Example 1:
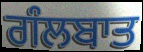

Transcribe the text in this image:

ਗੰਲਬਾਤ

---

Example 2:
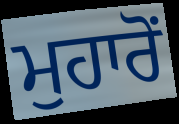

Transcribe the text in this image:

ਮੁਹਾਰੋਂ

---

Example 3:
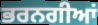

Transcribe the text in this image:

ਭਰਨਗੀਆਂ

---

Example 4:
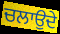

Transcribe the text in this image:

ਚਲਾਉਦੇ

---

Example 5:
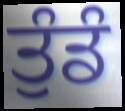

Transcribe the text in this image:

ਤੁੰਡੰ